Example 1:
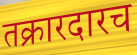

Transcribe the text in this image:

तक्रारदारच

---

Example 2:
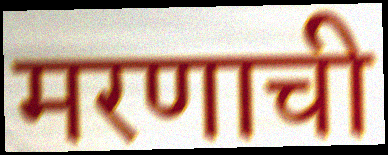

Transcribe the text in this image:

मरणाची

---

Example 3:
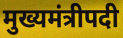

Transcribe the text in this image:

मुख्यमंत्रीपदी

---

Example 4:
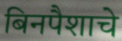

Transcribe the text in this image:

बिनपैशाचे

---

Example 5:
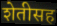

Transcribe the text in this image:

शेतीसह